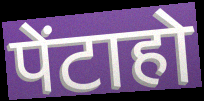
पेंटाहो